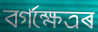
বৰ্গক্ষেত্ৰৰ